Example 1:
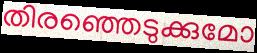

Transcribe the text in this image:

തിരഞ്ഞെടുക്കുമോ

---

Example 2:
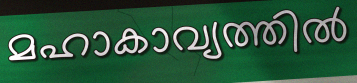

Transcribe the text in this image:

മഹാകാവ്യത്തിൽ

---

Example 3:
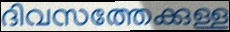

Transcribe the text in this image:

ദിവസത്തേക്കുള്ള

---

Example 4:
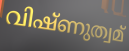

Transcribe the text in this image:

വിഷ്ണുത്വമ്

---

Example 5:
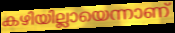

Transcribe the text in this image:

കഴിയില്ലായെന്നാണ്